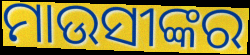
ମାଉସୀଙ୍କର